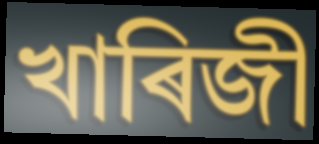
খাৰিজী